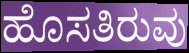
ಹೊಸತಿರುವು